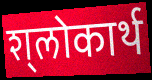
श्लोकार्थ